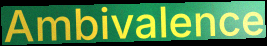
Ambivalence